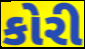
કોરી